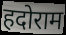
हदोराम